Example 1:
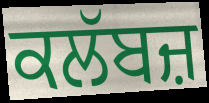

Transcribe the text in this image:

ਕਲੱਬਜ਼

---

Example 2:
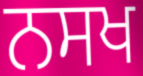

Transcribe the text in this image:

ਨਸਖ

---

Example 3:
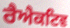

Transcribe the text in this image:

ਰੈਐਕਟਿਵ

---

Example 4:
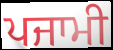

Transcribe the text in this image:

ਪਜਾਮੀ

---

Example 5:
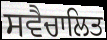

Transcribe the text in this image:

ਸਵੈਚਾਲਿਤ